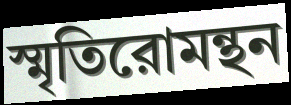
স্মৃতিরোমন্থন